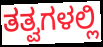
ತತ್ವಗಳಲ್ಲಿ